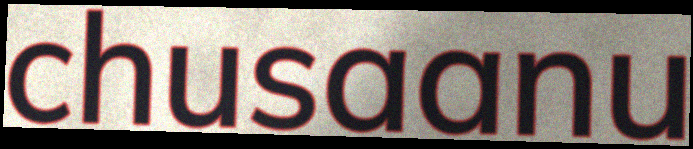
chusaanu